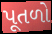
પૂતળો